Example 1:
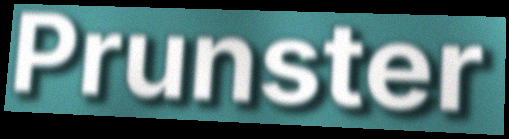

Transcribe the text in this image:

Prunster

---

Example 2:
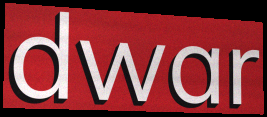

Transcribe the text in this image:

dwar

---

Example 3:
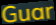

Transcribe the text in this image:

Guar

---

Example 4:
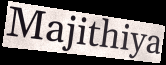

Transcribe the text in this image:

Majithiya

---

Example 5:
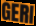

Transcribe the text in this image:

GERI